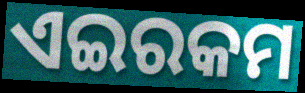
ଏଇରକମ